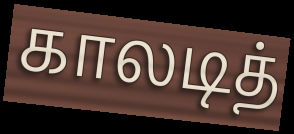
காலடித்